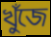
খুঁজে